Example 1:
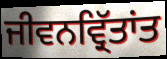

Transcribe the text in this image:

ਜੀਵਨਵ੍ਰਿੱਤਾਂਤ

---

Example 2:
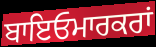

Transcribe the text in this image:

ਬਾਇਓਮਾਰਕਰਾਂ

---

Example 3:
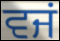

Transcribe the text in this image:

ਵਜਂ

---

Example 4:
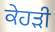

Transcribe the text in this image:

ਕੇਹੜੀ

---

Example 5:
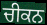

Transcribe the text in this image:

ਚੀਕਨ